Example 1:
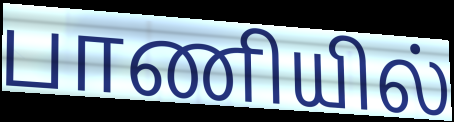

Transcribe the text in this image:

பாணியில்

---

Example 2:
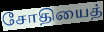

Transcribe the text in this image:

சோதியைத்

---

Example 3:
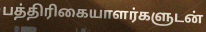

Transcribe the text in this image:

பத்திரிகையாளர்களுடன்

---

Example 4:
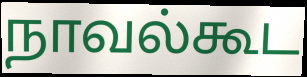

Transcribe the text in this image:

நாவல்கூட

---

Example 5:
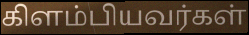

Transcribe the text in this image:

கிளம்பியவர்கள்